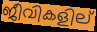
ജീവികളില്